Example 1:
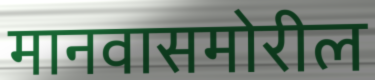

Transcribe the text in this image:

मानवासमोरील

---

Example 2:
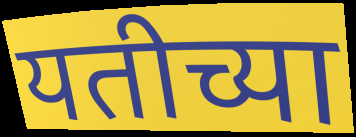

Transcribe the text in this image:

यतीच्या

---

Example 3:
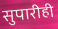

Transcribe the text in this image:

सुपारीही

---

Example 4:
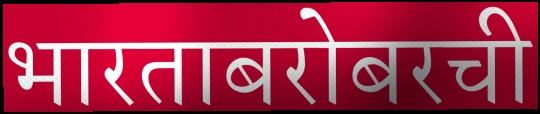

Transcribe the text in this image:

भारताबरोबरची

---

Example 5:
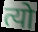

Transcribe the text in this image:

त्यो